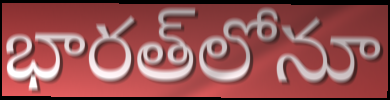
భారత్‌లోనూ